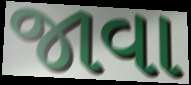
જાવા